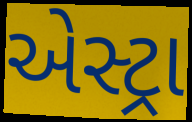
એસ્ટ્રા